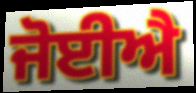
ਜੋਈਐ